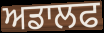
ਅਡਾਲਫ